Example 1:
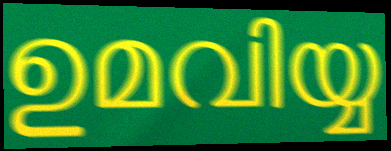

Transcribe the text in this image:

ഉമവിയ്യ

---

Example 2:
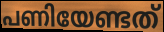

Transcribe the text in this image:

പണിയേണ്ടത്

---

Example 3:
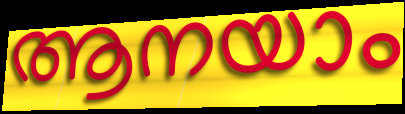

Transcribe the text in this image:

ആനയാം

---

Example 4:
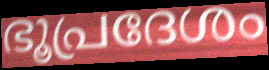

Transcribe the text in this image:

ഭൂപ്രദേശം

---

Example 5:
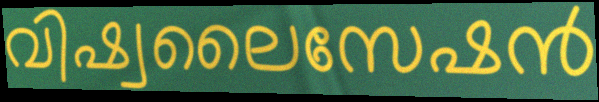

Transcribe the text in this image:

വിഷ്വലൈസേഷൻ